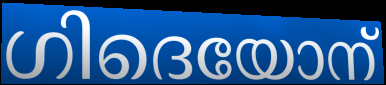
ഗിദെയോന്